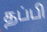
தப்பி